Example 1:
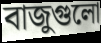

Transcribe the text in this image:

বাজুগুলো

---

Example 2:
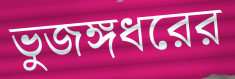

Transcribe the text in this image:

ভুজঙ্গধরের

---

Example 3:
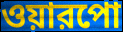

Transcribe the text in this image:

ওয়ারপো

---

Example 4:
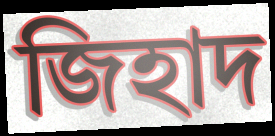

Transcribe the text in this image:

জিহাদ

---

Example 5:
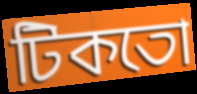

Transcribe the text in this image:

টিকতো